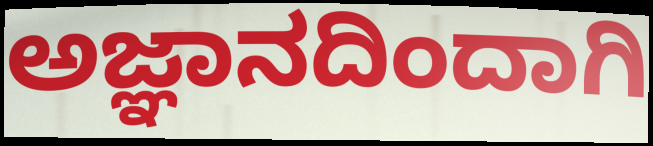
ಅಜ್ಞಾನದಿಂದಾಗಿ